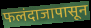
फलंदाजापासून